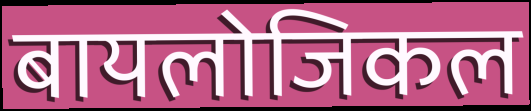
बायलोजिकल